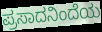
ಪ್ರಸಾದನಿಂದೆಯ